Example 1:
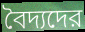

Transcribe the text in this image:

বৈদ্যদের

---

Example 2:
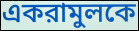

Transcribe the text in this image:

একরামুলকে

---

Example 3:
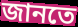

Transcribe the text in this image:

জানতে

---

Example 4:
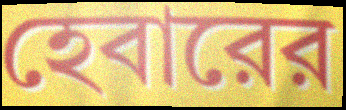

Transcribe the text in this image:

হেবারের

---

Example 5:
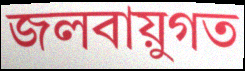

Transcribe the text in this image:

জলবায়ুগত